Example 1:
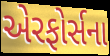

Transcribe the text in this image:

એરફોર્સના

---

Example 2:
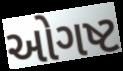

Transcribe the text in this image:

ઓગષ્ટ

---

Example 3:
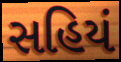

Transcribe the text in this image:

સહિયં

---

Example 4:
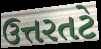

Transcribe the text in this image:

ઉત્તરતટે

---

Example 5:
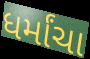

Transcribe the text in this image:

ધર્માંચા